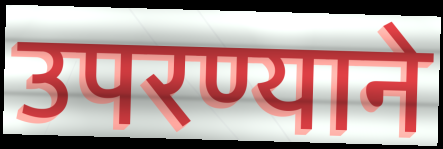
उपरण्याने